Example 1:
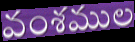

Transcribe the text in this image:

వంశముల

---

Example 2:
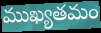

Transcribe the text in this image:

ముఖ్యతమం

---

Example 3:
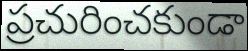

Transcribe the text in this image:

ప్రచురించకుండా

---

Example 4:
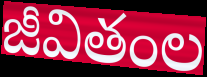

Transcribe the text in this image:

జీవితంల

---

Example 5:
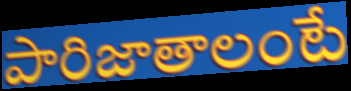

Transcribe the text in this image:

పారిజాతాలంటే